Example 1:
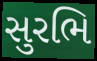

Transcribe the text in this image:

સુરભિ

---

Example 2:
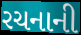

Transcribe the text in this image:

રચનાની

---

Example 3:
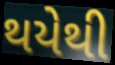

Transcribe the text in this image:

થયેથી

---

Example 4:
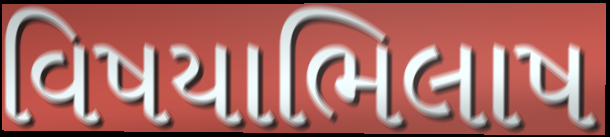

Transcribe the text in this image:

વિષયાભિલાષ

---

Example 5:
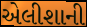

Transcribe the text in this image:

એલીશાની